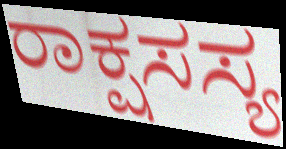
ರಾಕ್ಷಸಸ್ಯ